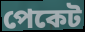
পেকেট